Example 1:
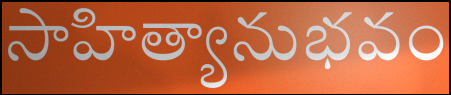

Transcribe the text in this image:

సాహిత్యానుభవం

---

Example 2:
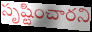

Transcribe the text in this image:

సృష్టించారని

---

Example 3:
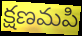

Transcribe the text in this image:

క్షణమపి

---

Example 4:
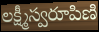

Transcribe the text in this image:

లక్ష్మీస్వరూపిణి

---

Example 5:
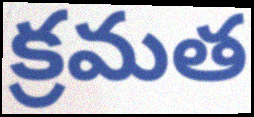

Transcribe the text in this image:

క్రమత